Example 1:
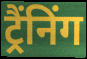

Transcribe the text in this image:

ट्रैंनिंग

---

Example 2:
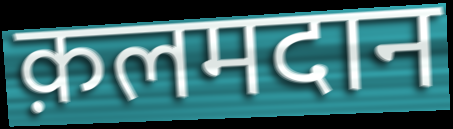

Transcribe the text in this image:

क़लमदान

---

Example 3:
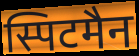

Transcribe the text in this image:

स्पिटमैन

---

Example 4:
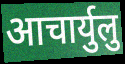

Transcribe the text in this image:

आचार्युलु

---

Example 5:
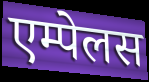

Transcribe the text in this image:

एम्पेलस